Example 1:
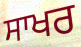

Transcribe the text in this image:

ਸਾਖਰ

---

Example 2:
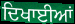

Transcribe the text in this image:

ਦਿਖਾਈਆਂ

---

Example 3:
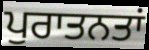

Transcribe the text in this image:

ਪੁਰਾਤਨਤਾਂ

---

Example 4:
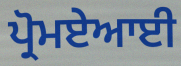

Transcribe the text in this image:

ਪ੍ਰੋਮਏਆਈ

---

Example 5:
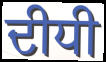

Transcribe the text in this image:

ਦੀਧੀ